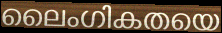
ലൈംഗികതയെ